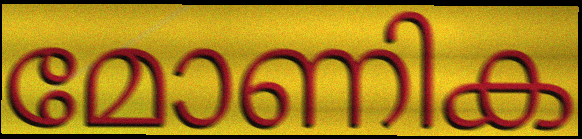
മോണിക